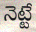
నెట్టే